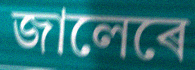
জালেৰে